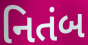
નિતંબ